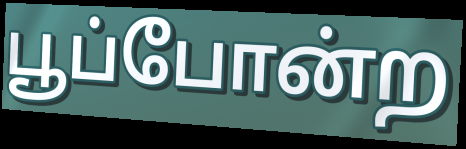
பூப்போன்ற